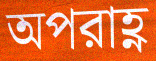
অপরাহ্ণ